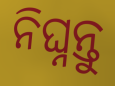
ନିଘ୍ନନ୍ତୁ